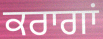
ਕਰਾਗਾਂ